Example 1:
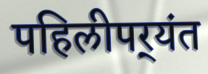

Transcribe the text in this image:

पहिलीपर्यंत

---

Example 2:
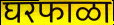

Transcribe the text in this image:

घरफाळा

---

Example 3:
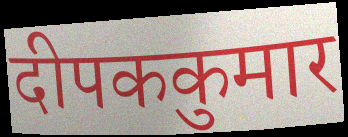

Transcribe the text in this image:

दीपककुमार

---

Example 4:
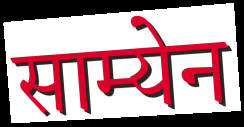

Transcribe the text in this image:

साम्येन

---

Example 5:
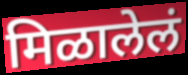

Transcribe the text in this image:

मिळालेलं